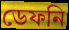
ডেফনি